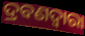
ଦ୍ରବଣଦ୍ବାରା